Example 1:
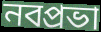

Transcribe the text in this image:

নবপ্রভা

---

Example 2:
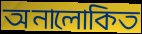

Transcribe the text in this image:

অনালোকিত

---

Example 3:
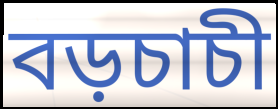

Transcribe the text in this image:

বড়চাচী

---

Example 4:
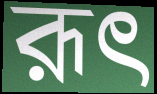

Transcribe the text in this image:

রূৎ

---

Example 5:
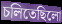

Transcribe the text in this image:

চলিতেছিলো